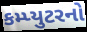
કમ્પ્યુટરનો